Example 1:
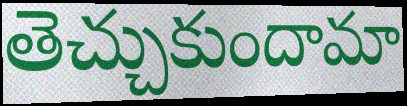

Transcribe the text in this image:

తెచ్చుకుందామా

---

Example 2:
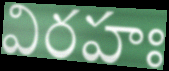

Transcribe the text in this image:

విరహః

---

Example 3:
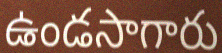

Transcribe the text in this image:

ఉండసాగారు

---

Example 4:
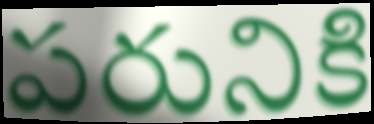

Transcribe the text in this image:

పరునికి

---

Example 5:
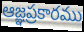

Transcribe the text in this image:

ఆజ్ఞప్రకారము